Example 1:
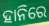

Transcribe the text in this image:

ହାନିରେ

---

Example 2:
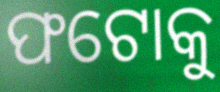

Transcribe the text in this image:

ଫଟୋକୁ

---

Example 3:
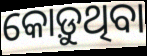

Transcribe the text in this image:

କୋଡ଼ୁଥିବା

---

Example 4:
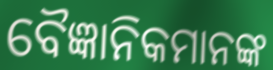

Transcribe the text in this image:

ବୈଜ୍ଞାନିକମାନଙ୍କ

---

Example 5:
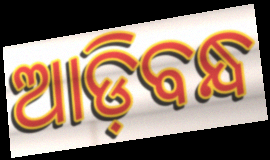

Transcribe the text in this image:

ଆଡ଼ିବନ୍ଧ